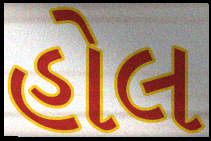
હોલ